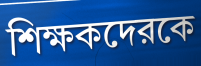
শিক্ষকদেরকে